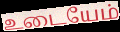
உடையேம்